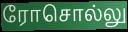
ரோசொல்லு